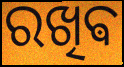
ରଖିଵ